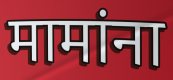
मामांना